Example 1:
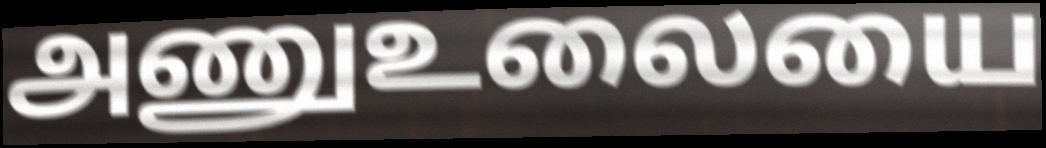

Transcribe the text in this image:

அணுஉலையை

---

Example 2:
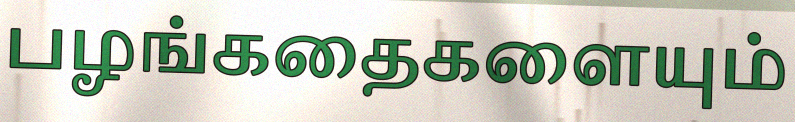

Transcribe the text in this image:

பழங்கதைகளையும்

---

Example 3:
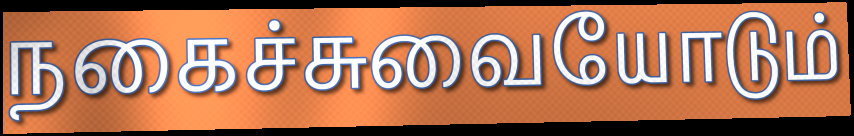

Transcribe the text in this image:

நகைச்சுவையோடும்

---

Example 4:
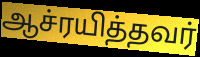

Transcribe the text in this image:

ஆச்ரயித்தவர்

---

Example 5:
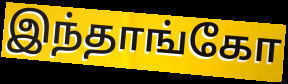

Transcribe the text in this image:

இந்தாங்கோ